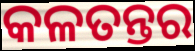
କଳତନ୍ତର